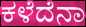
ಕಳೆದೆನಾ